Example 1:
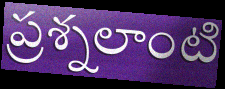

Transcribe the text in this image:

ప్రశ్నలాంటి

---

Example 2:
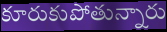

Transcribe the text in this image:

కూరుకుపోతున్నారు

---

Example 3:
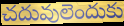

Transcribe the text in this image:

చదువులెందుకు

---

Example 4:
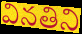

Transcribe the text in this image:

వినతిని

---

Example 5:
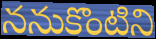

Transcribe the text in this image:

ననుకొంటిని